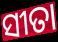
ସୀତା